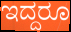
ಇದ್ದರೂ